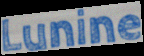
Lunine